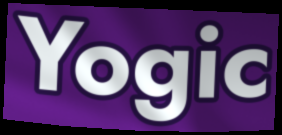
Yogic